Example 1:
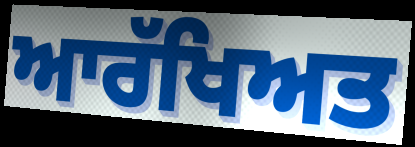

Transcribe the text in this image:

ਆਰੱਖਿਅਤ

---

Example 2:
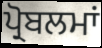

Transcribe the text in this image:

ਪ੍ਰੋਬਲਮਾਂ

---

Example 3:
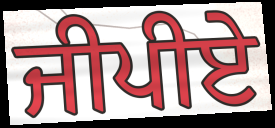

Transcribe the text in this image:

ਜੀਪੀਏ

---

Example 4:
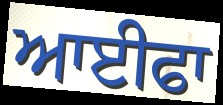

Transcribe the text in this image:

ਆਈਫਾ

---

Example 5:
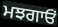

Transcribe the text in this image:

ਮਝਗਾਓਂ